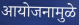
आयोजनामुळे